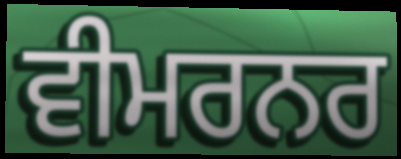
ਵੀਮਰਨਰ